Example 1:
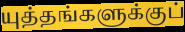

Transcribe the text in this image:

யுத்தங்களுக்குப்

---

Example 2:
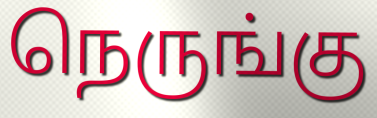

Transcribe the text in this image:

நெருங்கு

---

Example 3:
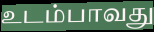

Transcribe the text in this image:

உடம்பாவது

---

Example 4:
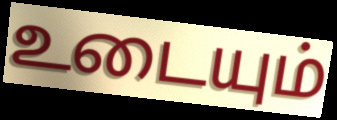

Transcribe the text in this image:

உடையும்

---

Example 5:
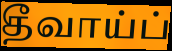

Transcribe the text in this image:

தீவாய்ப்